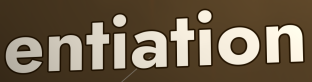
entiation